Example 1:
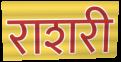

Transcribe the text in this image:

राशरी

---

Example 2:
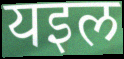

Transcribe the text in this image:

यइल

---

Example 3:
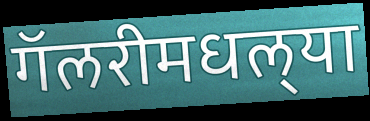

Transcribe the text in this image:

गॅलरीमधल्या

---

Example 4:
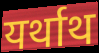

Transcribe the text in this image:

यर्थाथ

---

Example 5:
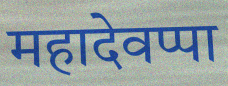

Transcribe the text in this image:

महादेवप्पा